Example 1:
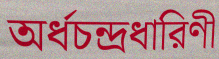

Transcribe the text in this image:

অর্ধচন্দ্রধারিণী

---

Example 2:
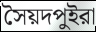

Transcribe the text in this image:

সৈয়দপুইরা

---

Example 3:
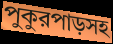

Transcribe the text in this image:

পুকুরপাড়সহ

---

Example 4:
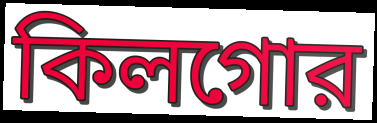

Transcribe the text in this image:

কিলগোর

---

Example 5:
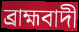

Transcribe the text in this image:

ব্রাহ্মবাদী